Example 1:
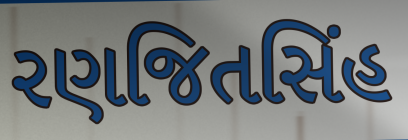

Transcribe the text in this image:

રણજિતસિંહ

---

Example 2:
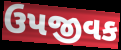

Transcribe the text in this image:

ઉપજીવક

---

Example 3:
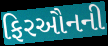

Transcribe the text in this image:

ફિરઔનની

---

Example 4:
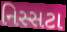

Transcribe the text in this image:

નિસ્સટા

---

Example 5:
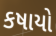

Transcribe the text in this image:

કષાયો